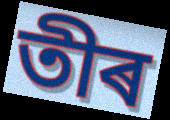
তীৰ